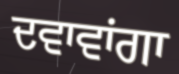
ਦਵਾਵਾਂਗਾ